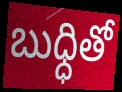
బుధ్ధితో